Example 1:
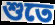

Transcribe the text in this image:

শুতে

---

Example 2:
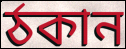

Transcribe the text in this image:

ঠকান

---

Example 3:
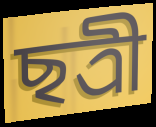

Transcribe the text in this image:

ছত্রী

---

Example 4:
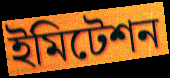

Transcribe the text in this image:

ইমিটেশন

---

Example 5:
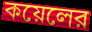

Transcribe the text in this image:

কয়েলের